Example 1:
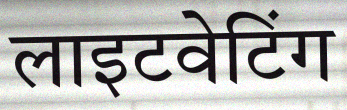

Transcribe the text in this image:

लाइटवेटिंग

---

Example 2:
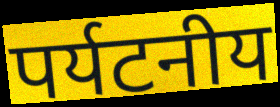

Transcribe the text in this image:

पर्यटनीय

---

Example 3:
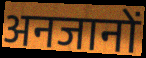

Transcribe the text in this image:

अनजानों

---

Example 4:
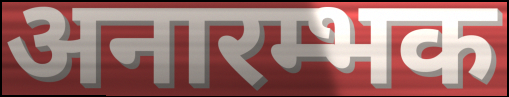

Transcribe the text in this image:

अनारम्भक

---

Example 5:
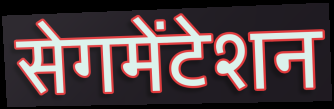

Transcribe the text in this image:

सेगमेंटेशन